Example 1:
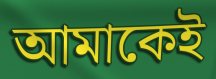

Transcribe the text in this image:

আমাকেই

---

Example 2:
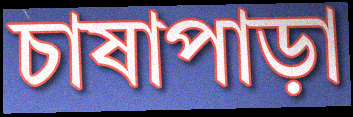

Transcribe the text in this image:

চাষাপাড়া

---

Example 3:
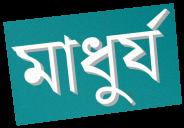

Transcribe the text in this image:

মাধুর্য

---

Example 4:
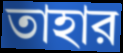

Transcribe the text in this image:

তাহার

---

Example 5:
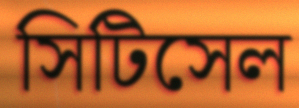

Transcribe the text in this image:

সিটিসেল